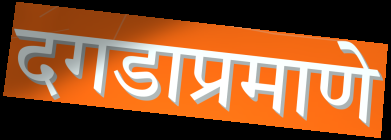
दगडाप्रमाणे